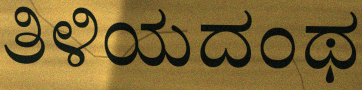
ತಿಳಿಯದಂಥ